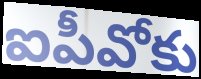
ఐపీవోకు